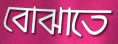
বোঝাতে